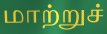
மாற்றுச்